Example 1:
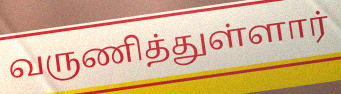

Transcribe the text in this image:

வருணித்துள்ளார்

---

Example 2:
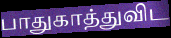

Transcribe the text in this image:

பாதுகாத்துவிட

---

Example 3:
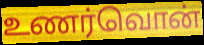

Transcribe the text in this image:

உணர்வொன்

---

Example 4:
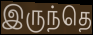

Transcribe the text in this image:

இருந்தெ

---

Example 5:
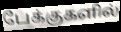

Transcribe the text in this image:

பேக்குகளில்